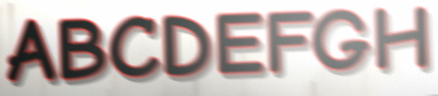
ABCDEFGH